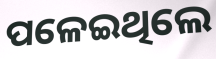
ପଳେଇଥିଲେ